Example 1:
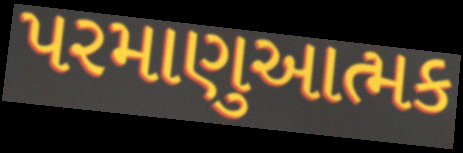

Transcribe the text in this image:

પરમાણુઆત્મક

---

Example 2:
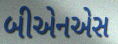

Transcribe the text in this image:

બીએનએસ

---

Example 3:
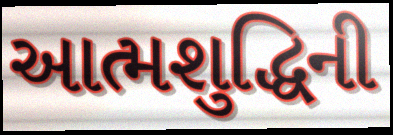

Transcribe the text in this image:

આત્મશુદ્ધિની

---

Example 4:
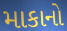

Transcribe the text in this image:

માકાનો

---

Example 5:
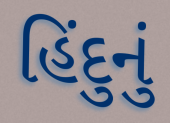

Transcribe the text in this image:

હિંદુનું